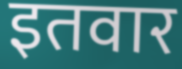
इतवार